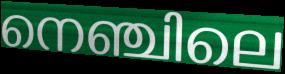
നെഞ്ചിലെ